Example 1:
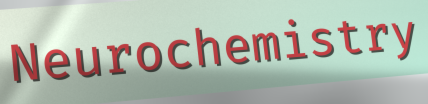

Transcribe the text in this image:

Neurochemistry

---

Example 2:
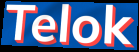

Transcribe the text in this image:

Telok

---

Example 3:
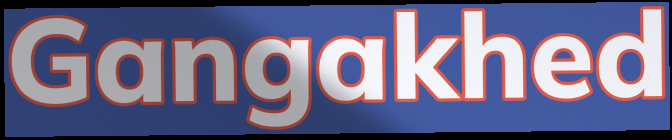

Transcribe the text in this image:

Gangakhed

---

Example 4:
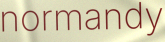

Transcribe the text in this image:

normandy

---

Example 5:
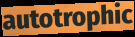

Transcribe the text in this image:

autotrophic